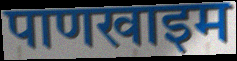
पाणखाइम